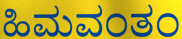
ಹಿಮವಂತಂ